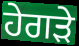
ਹੇਗੜੇ